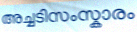
അച്ചടിസംസ്കാരം